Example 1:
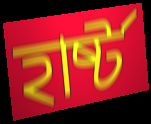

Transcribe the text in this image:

হাৰ্ষ্ট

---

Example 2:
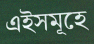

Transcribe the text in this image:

এইসমূহে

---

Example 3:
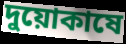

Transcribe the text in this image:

দুয়োকাষে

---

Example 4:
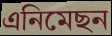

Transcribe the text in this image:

এনিমেছন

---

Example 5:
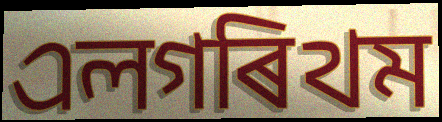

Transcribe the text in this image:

এলগৰিথম